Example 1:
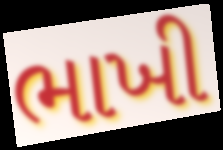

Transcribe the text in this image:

ભાખી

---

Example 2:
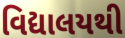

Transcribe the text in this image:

વિદ્યાલયથી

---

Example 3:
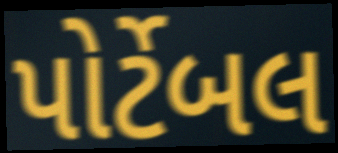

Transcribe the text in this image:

પોર્ટેબલ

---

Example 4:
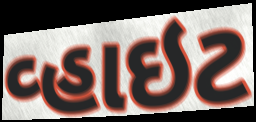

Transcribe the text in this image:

વ્હાઇટ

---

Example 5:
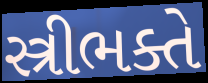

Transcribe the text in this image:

સ્ત્રીભક્તે